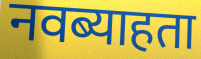
नवब्याहता